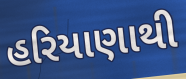
હરિયાણાથી